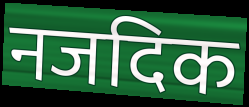
नजदिक